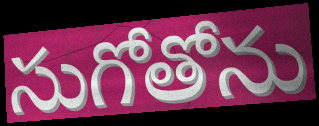
సుగోతోను